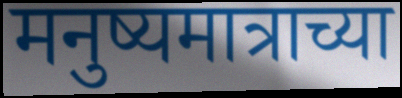
मनुष्यमात्राच्या